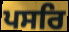
ਪਸਰਿ